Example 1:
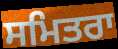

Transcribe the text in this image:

ਸਮਿਤਰਾ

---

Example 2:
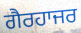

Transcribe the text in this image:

ਗੈਰਹਾਜਰ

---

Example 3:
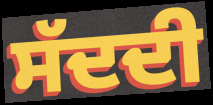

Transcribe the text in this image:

ਸੱਦਦੀ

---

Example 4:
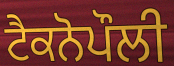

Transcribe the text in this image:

ਟੈਕਨੋਪੌਲੀ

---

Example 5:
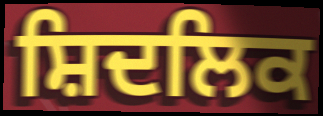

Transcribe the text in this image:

ਸ਼ਿਦਲਿਕ